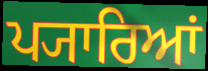
ਪ੍ਯਾਰਿਆਂ